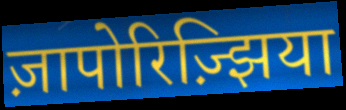
ज़ापोरिज़्झिया